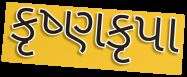
કૃષ્ણકૃપા